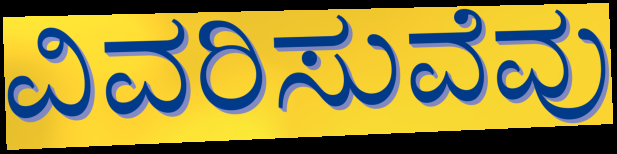
ವಿವರಿಸುವೆವು